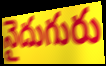
నైదుగురు